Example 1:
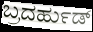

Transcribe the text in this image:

ಬ್ರದರ್ಹುಡ್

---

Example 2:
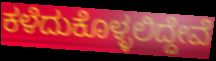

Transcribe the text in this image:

ಕಳೆದುಕೊಳ್ಳಲಿದ್ದೇವೆ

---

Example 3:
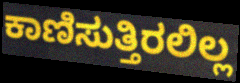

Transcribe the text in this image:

ಕಾಣಿಸುತ್ತಿರಲಿಲ್ಲ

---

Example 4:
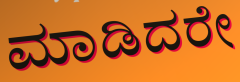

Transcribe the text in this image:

ಮಾಡಿದರೇ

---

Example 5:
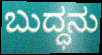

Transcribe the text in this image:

ಬುದ್ಧನು